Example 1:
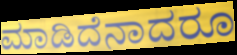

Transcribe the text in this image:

ಮಾಡಿದೆನಾದರೂ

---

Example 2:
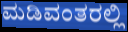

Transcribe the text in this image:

ಮಡಿವಂತರಲ್ಲಿ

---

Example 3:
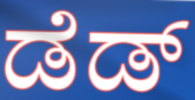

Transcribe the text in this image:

ಡೆಡ್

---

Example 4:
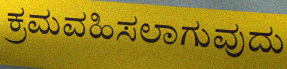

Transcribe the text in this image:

ಕ್ರಮವಹಿಸಲಾಗುವುದು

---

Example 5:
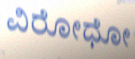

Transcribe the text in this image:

ವಿರೋಧೋ